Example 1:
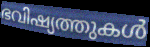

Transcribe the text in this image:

ഭവിഷ്യത്തുകൾ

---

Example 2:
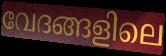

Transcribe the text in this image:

വേദങ്ങളിലെ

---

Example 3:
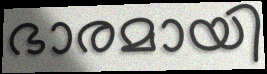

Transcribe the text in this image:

ഭാരമായി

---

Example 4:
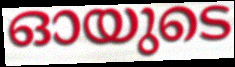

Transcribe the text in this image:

ഓയുടെ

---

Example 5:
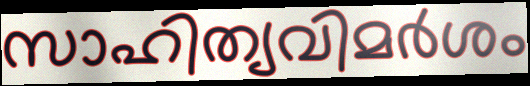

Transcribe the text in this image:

സാഹിത്യവിമർശം